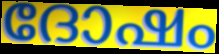
ദോഷം